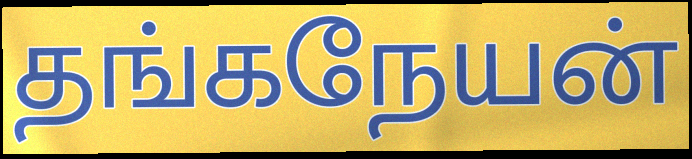
தங்கநேயன்